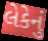
લેકેનું